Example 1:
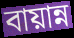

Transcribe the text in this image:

বায়ান্ন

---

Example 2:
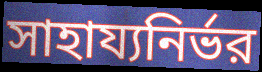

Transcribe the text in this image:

সাহায্যনির্ভর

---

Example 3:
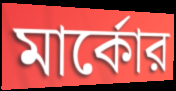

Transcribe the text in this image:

মার্কোর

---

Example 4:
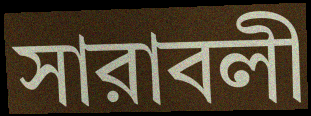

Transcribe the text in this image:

সারাবলী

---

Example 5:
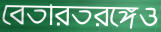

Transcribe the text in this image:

বেতারতরঙ্গেও